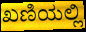
ಖಣಿಯಲ್ಲಿ